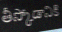
తీస్కోడానికి